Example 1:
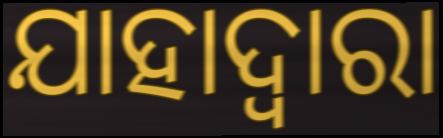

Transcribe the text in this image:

ଯାହାଦ୍ୱାରା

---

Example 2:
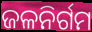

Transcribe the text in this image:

ଜଳନିର୍ଗମ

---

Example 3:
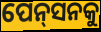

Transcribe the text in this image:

ପେନ୍‌ସନକୁ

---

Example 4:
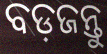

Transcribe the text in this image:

ବଡ଼ଜନ୍ତୁ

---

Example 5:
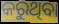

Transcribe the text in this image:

କରୁଥିବା